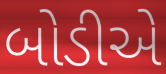
બોડીએ